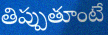
తిప్పుతూంటే